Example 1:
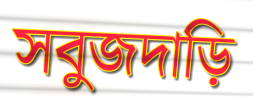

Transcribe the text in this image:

সবুজদাড়ি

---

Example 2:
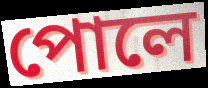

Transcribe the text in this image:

পোলে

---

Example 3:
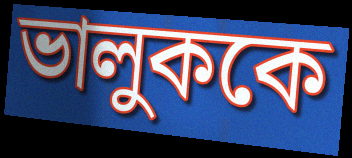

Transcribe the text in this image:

ভালুককে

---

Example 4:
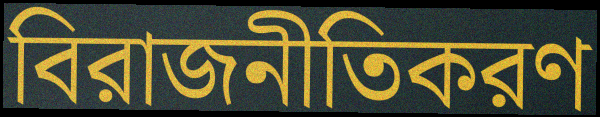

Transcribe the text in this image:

বিরাজনীতিকরণ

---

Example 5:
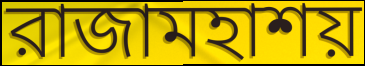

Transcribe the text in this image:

রাজামহাশয়